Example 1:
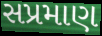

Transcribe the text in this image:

સપ્રમાણ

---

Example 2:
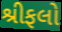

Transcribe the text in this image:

શ્રીફલો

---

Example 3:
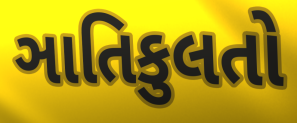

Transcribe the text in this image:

ઞાતિકુલતો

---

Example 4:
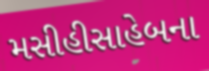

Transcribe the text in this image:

મસીહીસાહેબના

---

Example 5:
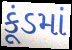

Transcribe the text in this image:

કૂંડમાં